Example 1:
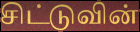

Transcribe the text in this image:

சிட்டுவின்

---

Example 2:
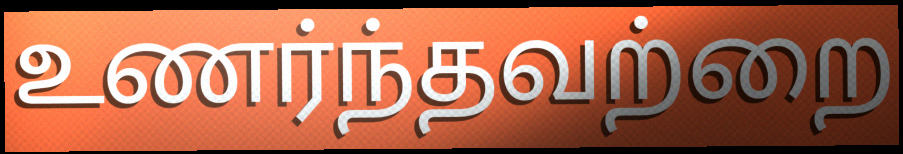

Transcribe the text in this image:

உணர்ந்தவற்றை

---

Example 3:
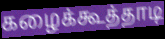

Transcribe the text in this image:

கழைக்கூத்தாடி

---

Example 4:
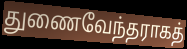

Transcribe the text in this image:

துணைவேந்தராகத்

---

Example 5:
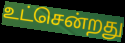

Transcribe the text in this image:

உட்சென்றது